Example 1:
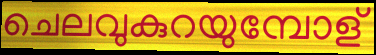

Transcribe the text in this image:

ചെലവുകുറയുമ്പോള്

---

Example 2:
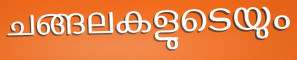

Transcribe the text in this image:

ചങ്ങലകളുടെയും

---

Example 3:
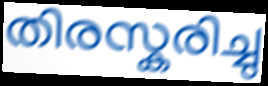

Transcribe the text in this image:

തിരസ്കരിച്ചു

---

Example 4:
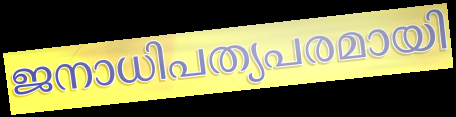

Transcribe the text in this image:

ജനാധിപത്യപരമായി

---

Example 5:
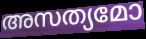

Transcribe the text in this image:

അസത്യമോ